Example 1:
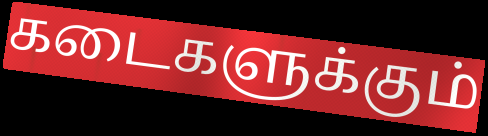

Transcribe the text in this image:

கடைகளுக்கும்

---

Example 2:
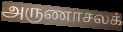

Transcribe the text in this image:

அருணாசலக்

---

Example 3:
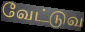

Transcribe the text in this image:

வேட்டுவ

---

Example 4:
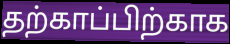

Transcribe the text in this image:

தற்காப்பிற்காக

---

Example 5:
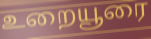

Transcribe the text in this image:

உறையூரை